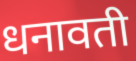
धनावती